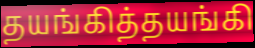
தயங்கித்தயங்கி